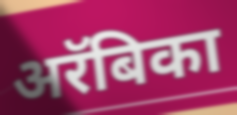
अरॅबिका